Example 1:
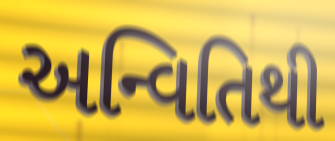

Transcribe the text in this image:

અન્વિતિથી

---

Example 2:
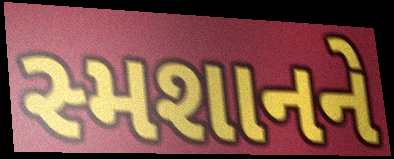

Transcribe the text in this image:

સ્મશાનને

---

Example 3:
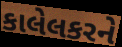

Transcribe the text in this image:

કાલેલકરને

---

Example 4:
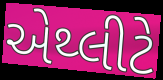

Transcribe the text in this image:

એથ્લીટે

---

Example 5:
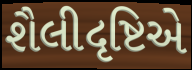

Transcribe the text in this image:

શૈલીદૃષ્ટિએ